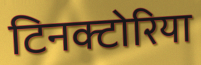
टिनक्टोरिया